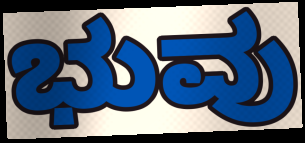
ಭುವು